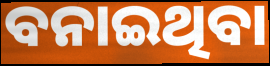
ବନାଇଥିବା